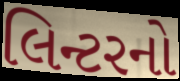
લિન્ટરનો